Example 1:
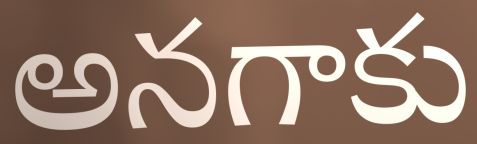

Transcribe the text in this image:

అనగాకు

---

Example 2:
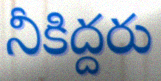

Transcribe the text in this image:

నీకిద్దరు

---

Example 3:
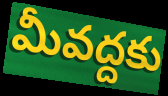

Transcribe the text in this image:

మీవద్దకు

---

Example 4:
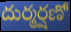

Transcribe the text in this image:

దుర్మర్షణో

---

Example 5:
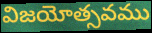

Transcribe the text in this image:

విజయోత్సవము